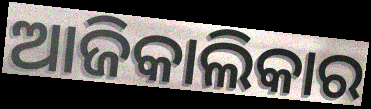
ଆଜିକାଲିକାର